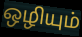
ஒழியும்